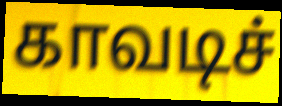
காவடிச்